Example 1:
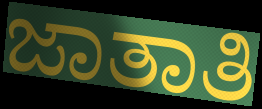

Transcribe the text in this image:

ಜಾತಾತಿ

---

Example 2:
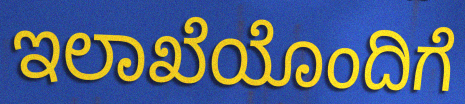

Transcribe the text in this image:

ಇಲಾಖೆಯೊಂದಿಗೆ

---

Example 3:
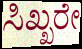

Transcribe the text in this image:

ಸಿಖ್ಖರೇ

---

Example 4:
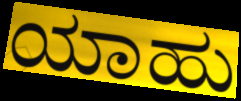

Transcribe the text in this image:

ಯಾಹು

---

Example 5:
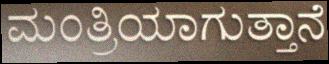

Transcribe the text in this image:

ಮಂತ್ರಿಯಾಗುತ್ತಾನೆ